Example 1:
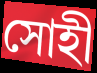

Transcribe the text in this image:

সোহী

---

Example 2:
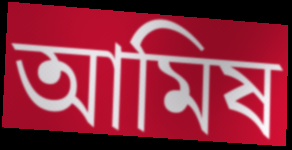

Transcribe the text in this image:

আমিষ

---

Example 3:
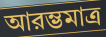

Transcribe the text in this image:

আরম্ভমাত্র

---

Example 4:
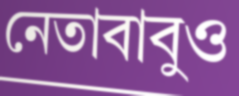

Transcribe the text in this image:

নেতাবাবুও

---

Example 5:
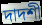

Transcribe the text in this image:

দাদশী